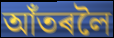
আঁতৰলৈ